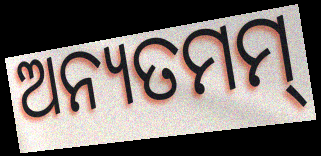
ଅନ୍ୟତମମ୍